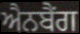
ਐਨਬੈਂਗ